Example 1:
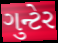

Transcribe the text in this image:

ગુન્ટેર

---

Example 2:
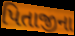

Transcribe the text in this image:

પિતાજીના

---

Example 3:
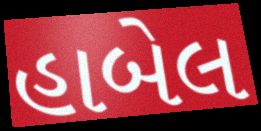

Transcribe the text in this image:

હાબેલ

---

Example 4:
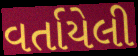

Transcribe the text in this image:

વર્તાયેલી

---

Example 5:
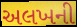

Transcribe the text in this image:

અલખની